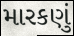
મારકણું